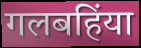
गलबहिंया